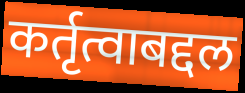
कर्तृत्वाबद्दल